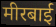
मीरबाई